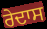
ਰੇਦਾਸ